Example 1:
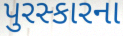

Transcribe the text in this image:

પુરસ્કારના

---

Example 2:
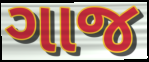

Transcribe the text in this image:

ગાજ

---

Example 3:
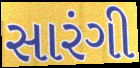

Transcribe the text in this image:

સારંગી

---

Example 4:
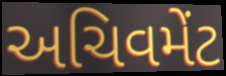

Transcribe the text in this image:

અચિવમેંટ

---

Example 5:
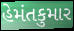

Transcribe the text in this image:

હેમંતકુમાર